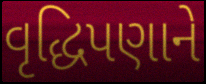
વૃદ્ધિપણાને